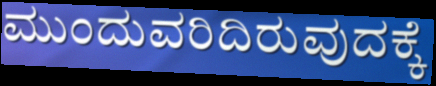
ಮುಂದುವರಿದಿರುವುದಕ್ಕೆ